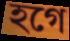
হগে